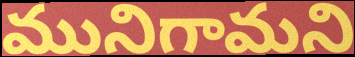
మునిగామని